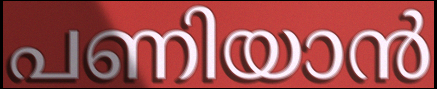
പണിയാൻ